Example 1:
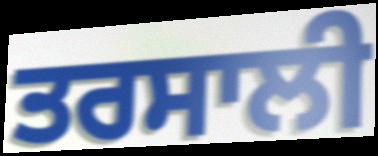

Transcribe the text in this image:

ਤਰਸਾਲੀ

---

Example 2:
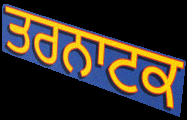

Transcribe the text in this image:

ਤਰਨਾਟਕ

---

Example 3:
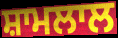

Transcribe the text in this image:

ਸ਼ਾਮਲਾਲ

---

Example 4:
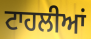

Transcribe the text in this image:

ਟਾਹਲੀਆਂ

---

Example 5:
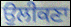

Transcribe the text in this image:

ਉਲੀਕਣਾ